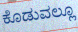
ಕೊಡುವಲ್ಲೂ